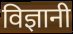
विज्ञानी